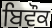
ਬਿਵੌਕ